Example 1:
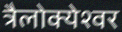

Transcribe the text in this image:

त्रैलोक्येश्वर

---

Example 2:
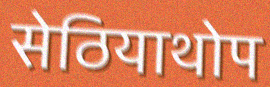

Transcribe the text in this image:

सेठियाथोप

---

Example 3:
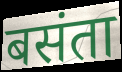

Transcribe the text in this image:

बसंता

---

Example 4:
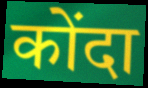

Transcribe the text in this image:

कोंदा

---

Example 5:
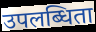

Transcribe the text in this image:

उपलब्धिता